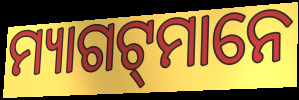
ମ୍ୟାଗଟ୍‌ମାନେ